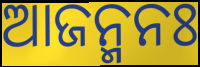
ଆଜନ୍ମନଃ